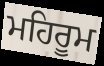
ਮਹਿਰੂਮ